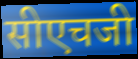
सीएचजी